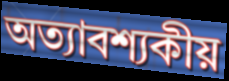
অত্যাবশ্যকীয়